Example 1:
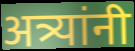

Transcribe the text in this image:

अत्र्यांनी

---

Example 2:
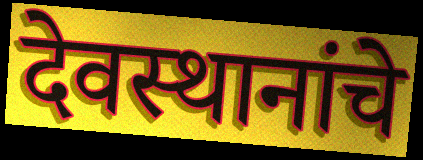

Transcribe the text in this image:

देवस्थानांचे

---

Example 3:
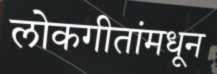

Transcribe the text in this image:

लोकगीतांमधून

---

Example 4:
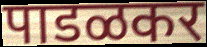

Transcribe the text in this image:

पाडळकर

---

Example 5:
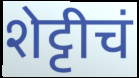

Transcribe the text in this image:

शेट्टीचं